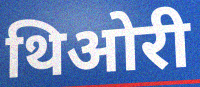
थिओरी